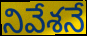
నివేశనే